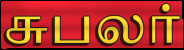
சுபலர்